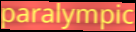
paralympic